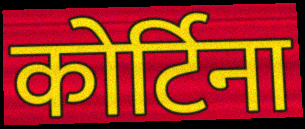
कोर्टिना